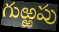
గుఱ్ఱపు